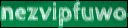
nezvipfuwo